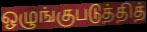
ஒழுங்குபடுத்தித்